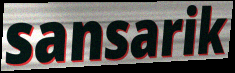
sansarik